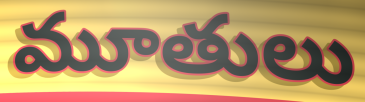
మూతులు